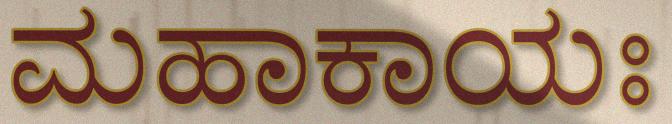
ಮಹಾಕಾಯಃ